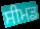
ਸੀਮਡ